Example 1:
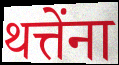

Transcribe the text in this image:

थत्तेंना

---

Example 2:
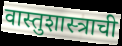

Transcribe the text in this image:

वास्तुशास्त्राची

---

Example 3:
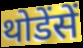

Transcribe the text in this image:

थोडेंसें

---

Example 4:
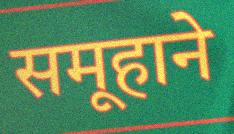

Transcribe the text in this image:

समूहाने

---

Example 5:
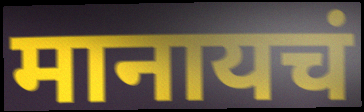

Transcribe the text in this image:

मानायचं